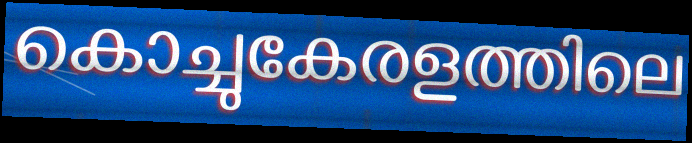
കൊച്ചുകേരളത്തിലെ